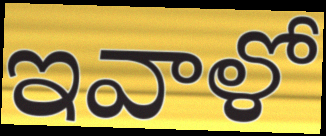
ఇవాళో